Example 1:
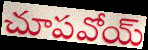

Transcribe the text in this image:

చూపవోయ్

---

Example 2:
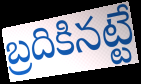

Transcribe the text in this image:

బ్రదికినట్టే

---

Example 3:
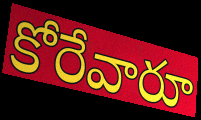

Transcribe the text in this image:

కోరేవారూ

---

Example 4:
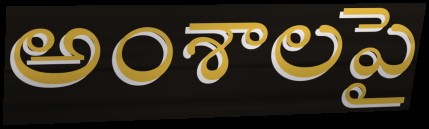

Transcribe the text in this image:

అంశాలపై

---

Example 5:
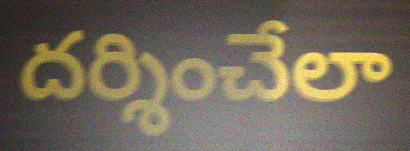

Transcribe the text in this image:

దర్శించేలా